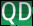
QD